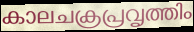
കാലചക്രപ്രവൃത്തിം